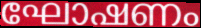
ഘോഷണം